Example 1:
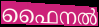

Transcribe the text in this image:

ഫൈനൽ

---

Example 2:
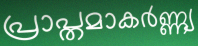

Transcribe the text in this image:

പ്രാപ്തമാകർണ്ണ്യ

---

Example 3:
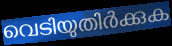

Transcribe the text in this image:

വെടിയുതിർക്കുക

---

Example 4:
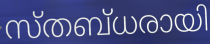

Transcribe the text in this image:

സ്തബ്ധരായി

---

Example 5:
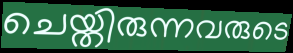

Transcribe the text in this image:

ചെയ്തിരുന്നവരുടെ